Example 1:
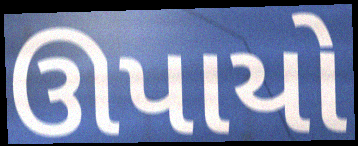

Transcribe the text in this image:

ઊપાયો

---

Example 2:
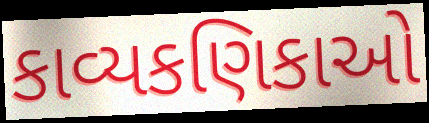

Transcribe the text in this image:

કાવ્યકણિકાઓ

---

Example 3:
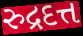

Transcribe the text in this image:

રુદ્રદત્ત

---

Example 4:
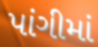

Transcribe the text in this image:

પાંગીમાં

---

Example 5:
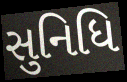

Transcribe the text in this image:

સુનિધિ